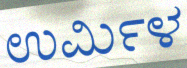
ಉರ್ಮಿಳ